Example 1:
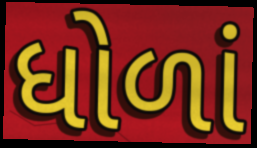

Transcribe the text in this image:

ધોળાં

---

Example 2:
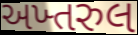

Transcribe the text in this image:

અખ્તરુલ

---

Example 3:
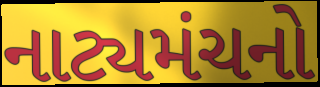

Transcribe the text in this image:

નાટ્યમંચનો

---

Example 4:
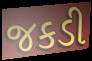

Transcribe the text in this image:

જકડી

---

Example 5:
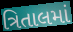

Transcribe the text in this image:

ત્રિતાલમાં